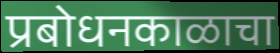
प्रबोधनकाळाचा